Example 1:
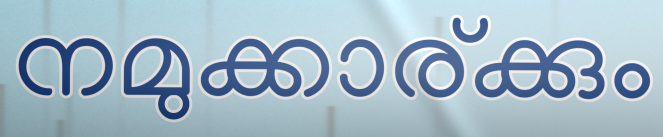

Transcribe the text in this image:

നമുക്കാര്ക്കും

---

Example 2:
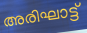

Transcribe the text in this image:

അരിഘാട്ട്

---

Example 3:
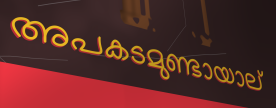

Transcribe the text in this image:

അപകടമുണ്ടായാല്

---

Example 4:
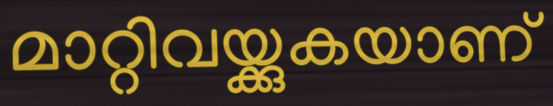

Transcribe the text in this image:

മാറ്റിവയ്ക്കുകയാണ്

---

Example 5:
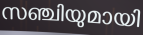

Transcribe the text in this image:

സഞ്ചിയുമായി